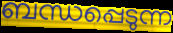
ബന്ധപ്പെടുന്ന